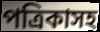
পত্রিকাসহ